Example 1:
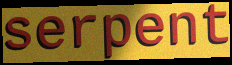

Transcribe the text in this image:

serpent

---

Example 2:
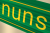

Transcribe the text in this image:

nuns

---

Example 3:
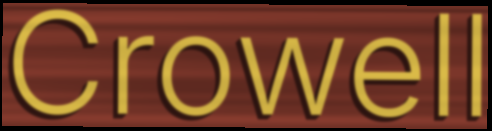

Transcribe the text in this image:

Crowell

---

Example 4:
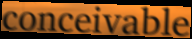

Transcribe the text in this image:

conceivable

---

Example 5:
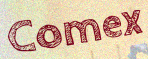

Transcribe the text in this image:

Comex